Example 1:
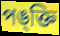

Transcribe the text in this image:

পঙ্‌ক্তি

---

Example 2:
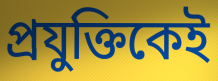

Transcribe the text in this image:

প্রযুক্তিকেই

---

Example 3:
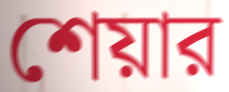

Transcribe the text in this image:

শেয়ার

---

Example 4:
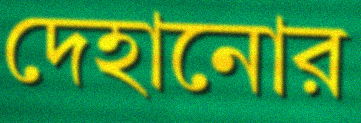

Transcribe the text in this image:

দেহানোর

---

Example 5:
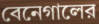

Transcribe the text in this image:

বেনেগালের